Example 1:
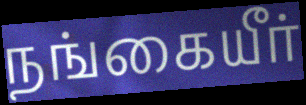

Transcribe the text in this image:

நங்கையீர்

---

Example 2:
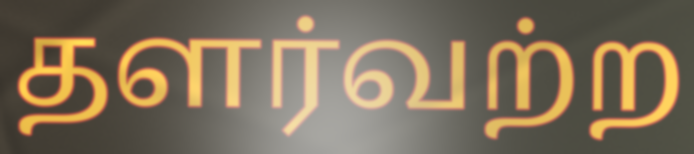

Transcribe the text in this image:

தளர்வற்ற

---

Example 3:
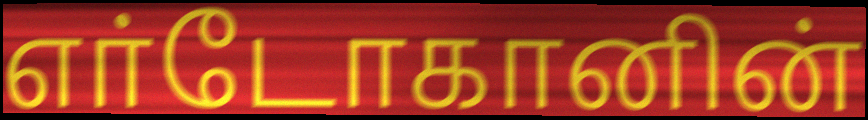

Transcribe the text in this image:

எர்டோகானின்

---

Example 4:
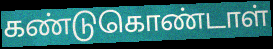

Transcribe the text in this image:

கண்டுகொண்டாள்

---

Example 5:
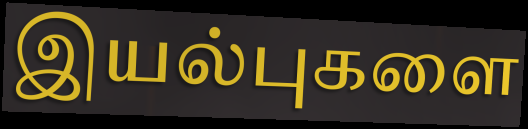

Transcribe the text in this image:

இயல்புகளை